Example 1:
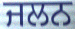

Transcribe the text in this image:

ਜਲਨ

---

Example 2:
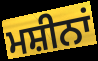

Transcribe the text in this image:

ਮਸ਼ੀਨਾਂ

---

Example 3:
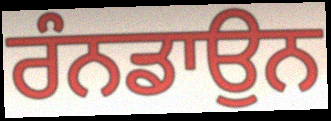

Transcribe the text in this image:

ਰੰਨਡਾਉਨ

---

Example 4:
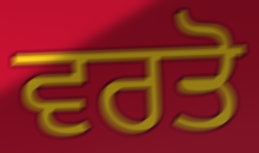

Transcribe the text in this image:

ਵਰਤੋ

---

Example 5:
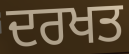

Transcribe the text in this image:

ਦਰਖਤ